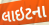
લાઇટના